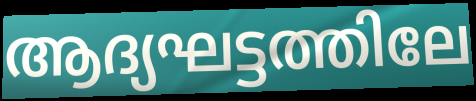
ആദ്യഘട്ടത്തിലേ